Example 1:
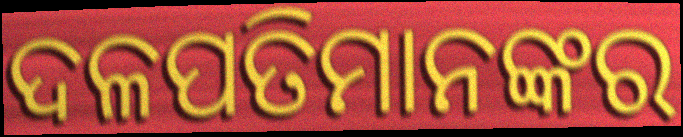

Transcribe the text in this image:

ଦଳପତିମାନଙ୍କର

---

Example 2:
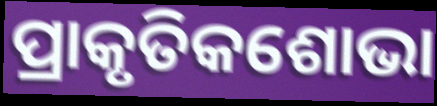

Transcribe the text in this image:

ପ୍ରାକୃତିକଶୋଭା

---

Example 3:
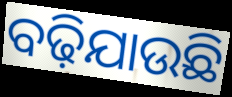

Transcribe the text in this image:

ବଢ଼ିଯାଉଛି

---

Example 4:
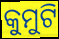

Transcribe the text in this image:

କୁମୁଟି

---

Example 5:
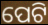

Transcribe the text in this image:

ପେଟି